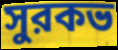
সুরকভ